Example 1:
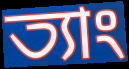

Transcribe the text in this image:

ত্যাং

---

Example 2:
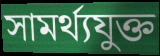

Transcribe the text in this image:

সামর্থ্যযুক্ত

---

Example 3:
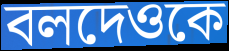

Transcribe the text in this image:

বলদেওকে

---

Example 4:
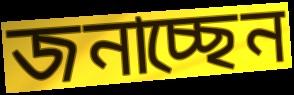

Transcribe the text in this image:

জনাচ্ছেন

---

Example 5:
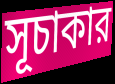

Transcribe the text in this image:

সূচাকার